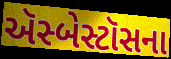
ઍસ્બેસ્ટૉસના